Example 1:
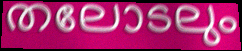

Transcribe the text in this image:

തലോടലും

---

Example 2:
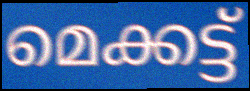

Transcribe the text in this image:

മെക്കട്ട്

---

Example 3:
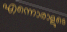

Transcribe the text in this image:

എന്നൊരാളുടെ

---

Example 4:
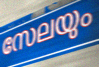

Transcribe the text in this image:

സേലയും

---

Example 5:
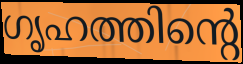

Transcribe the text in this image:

ഗൃഹത്തിന്റെ